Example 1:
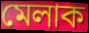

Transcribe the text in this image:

মেলাক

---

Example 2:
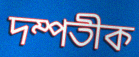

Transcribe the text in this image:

দম্পতীক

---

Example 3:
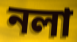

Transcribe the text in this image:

নলা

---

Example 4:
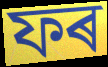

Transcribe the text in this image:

ফৰ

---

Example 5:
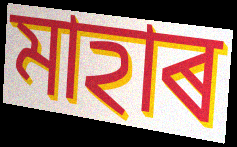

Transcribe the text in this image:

মাহাৰ